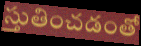
స్తుతించడంతో